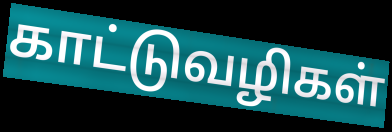
காட்டுவழிகள்